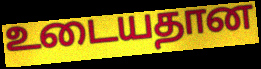
உடையதான